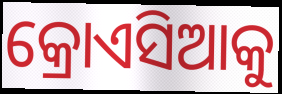
କ୍ରୋଏସିଆକୁ